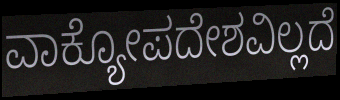
ವಾಕ್ಯೋಪದೇಶವಿಲ್ಲದೆ